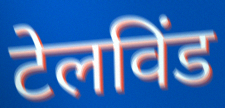
टेलविंड